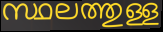
സ്ഥലത്തുള്ള